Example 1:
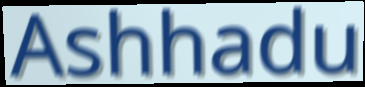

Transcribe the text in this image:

Ashhadu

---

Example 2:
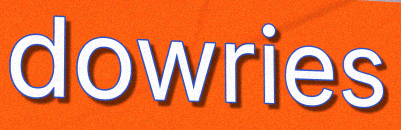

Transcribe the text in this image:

dowries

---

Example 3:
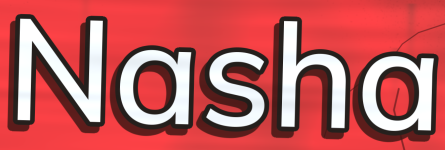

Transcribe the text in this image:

Nasha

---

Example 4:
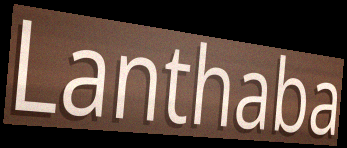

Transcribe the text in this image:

Lanthaba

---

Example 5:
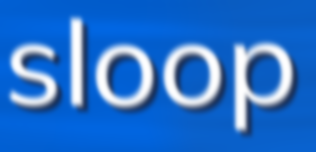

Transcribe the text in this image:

sloop